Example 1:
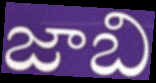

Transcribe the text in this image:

జాబి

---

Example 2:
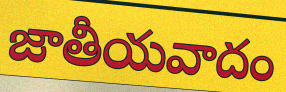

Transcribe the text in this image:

జాతీయవాదం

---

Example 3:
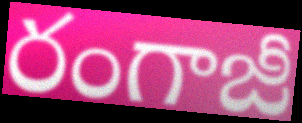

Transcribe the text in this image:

రంగాజీ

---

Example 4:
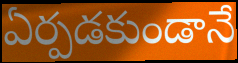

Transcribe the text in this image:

ఏర్పడకుండానే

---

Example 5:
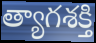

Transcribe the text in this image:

త్యాగశక్తి